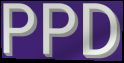
PPD